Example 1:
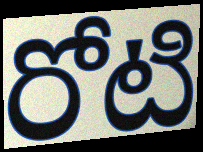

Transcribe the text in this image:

రోటి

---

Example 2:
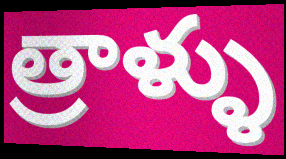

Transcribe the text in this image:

త్రాళ్ళు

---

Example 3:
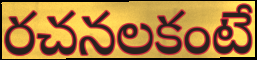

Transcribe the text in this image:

రచనలకంటే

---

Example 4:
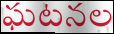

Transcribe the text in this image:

ఘటనల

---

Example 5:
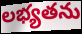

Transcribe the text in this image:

లభ్యతను